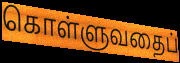
கொள்ளுவதைப்